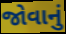
જોવાનું